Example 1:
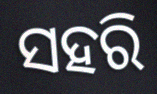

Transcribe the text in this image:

ସହରି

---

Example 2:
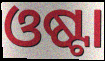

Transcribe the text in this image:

ଓଷ୍ଟା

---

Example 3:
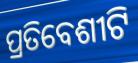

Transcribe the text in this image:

ପ୍ରତିବେଶୀଟି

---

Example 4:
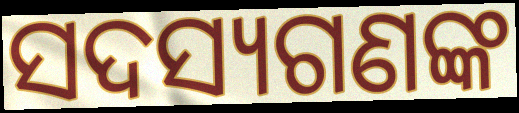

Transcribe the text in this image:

ସଦସ୍ୟଗଣଙ୍କ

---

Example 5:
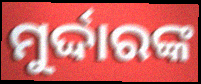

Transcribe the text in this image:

ମୁର୍ଦ୍ଦାରଙ୍କ